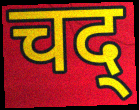
चद्